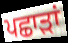
ਪਛਾੜਾਂ